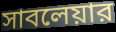
সাবলেয়ার